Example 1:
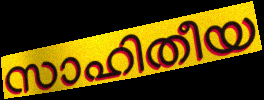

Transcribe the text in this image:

സാഹിതീയ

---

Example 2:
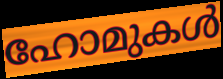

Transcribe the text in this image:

ഹോമുകൾ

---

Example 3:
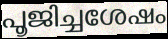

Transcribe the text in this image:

പൂജിച്ചശേഷം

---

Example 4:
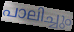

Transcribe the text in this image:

പാലിച്ചും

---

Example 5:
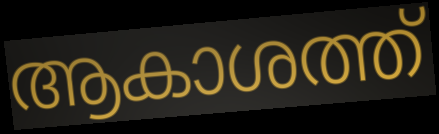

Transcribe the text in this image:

ആകാശത്ത്